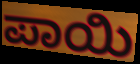
ಪಾಯಿ